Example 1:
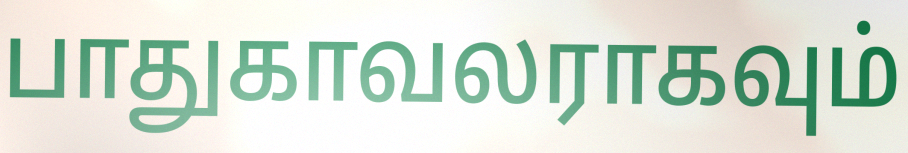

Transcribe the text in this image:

பாதுகாவலராகவும்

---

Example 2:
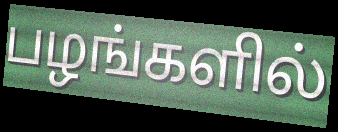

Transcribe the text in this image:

பழங்களில்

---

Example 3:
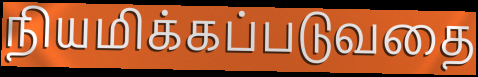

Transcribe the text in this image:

நியமிக்கப்படுவதை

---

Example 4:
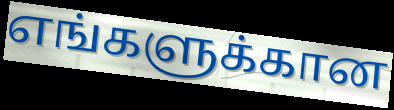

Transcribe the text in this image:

எங்களுக்கான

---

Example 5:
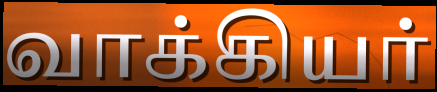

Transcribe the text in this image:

வாக்கியர்